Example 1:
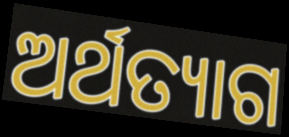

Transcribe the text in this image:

ଅର୍ଥତ୍ୟାଗ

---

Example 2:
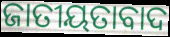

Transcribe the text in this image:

ଜାତୀୟତାବାଦ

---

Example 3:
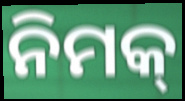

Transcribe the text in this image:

ନିମକ୍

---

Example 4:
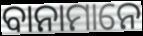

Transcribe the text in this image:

ବାନାମାନେ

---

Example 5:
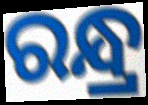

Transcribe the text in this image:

ରନ୍ଧ୍ର